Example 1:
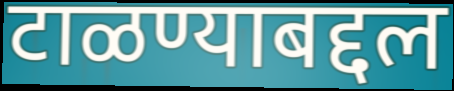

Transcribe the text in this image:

टाळण्याबद्दल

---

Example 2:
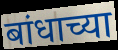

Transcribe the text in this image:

बांधाच्या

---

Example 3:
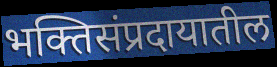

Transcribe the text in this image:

भक्तिसंप्रदायातील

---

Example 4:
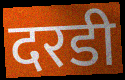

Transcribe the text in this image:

दरडी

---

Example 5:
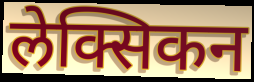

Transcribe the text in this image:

लेक्सिकन